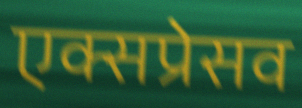
एक्सप्रेसव